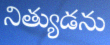
నిత్యుడను